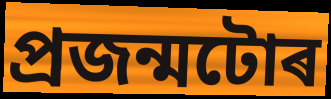
প্ৰজন্মটোৰ